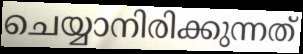
ചെയ്യാനിരിക്കുന്നത്